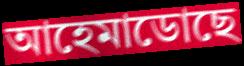
আহেমাডোছে